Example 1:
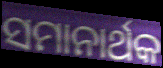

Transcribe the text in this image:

ସମାନାର୍ଥକ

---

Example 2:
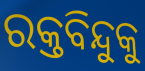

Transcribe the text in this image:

ରକ୍ତବିନ୍ଦୁକୁ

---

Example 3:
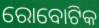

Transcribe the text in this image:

ରୋବୋଟିକ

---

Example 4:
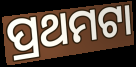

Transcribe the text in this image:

ପ୍ରଥମଟା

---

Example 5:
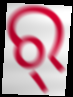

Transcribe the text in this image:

ର୍